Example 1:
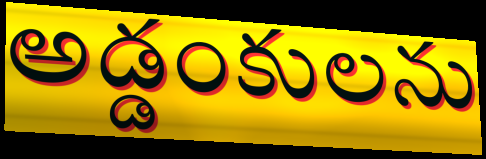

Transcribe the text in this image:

అడ్డంకులను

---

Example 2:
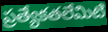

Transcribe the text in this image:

ప్రత్యేకతలేమిటి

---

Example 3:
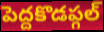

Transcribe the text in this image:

పెద్దకొడప్గల్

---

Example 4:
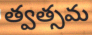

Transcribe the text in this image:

త్వత్సమ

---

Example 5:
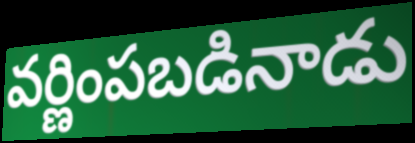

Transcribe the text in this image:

వర్ణింపబడినాడు